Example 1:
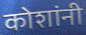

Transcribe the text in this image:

कोशांनी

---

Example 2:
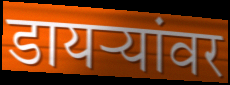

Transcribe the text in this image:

डायऱ्यांवर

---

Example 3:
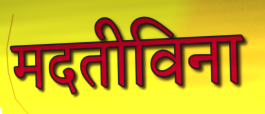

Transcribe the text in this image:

मदतीविना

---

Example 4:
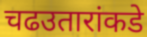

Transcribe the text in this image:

चढउतारांकडे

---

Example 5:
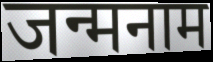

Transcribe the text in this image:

जन्मनाम